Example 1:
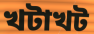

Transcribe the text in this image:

খটাখট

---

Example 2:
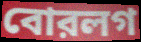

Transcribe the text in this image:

বোরলগ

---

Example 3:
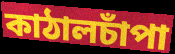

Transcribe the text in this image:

কাঠালচাঁপা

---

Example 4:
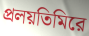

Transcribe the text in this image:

প্রলয়তিমিরে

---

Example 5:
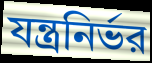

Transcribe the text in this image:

যন্ত্রনির্ভর